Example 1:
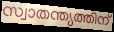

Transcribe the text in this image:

സ്വാതന്ത്യത്തിന്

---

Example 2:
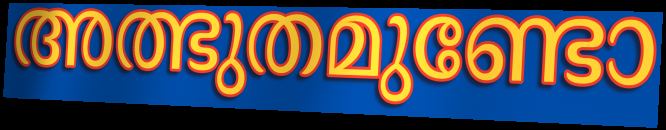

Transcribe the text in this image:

അത്ഭുതമുണ്ടോ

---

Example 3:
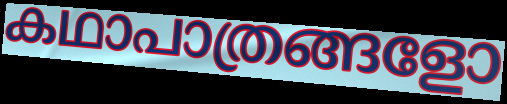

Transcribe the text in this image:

കഥാപാത്രങ്ങളോ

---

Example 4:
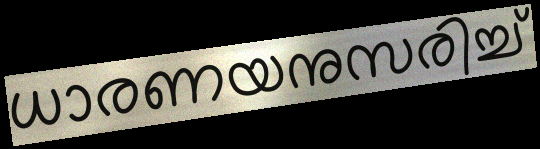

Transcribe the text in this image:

ധാരണയനുസരിച്ച്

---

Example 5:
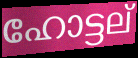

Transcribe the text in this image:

ഹോട്ടല്